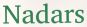
Nadars